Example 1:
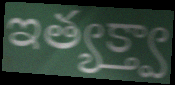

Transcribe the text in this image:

ఇత్యక్త్వా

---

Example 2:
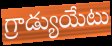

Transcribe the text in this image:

గ్రాడ్యుయేటు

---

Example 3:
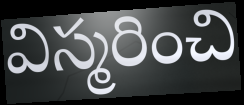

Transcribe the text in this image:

విస్మరించి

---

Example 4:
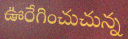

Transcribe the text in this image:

ఊరేగించుచున్న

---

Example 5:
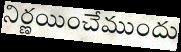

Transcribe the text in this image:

నిర్ణయించేముందు